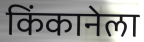
किंकानेला